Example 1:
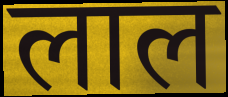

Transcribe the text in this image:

लाल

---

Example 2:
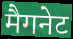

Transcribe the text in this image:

मैगनेट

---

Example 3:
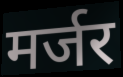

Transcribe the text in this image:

मर्जर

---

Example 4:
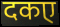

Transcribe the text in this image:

दकए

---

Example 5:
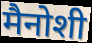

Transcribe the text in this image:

मैनोशी